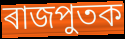
ৰাজপুতক